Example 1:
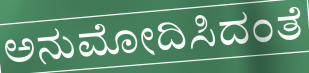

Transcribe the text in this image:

ಅನುಮೋದಿಸಿದಂತೆ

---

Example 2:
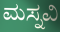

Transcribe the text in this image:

ಮಸ್ನವಿ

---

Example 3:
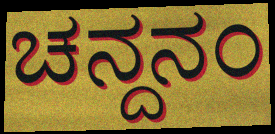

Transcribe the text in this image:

ಚನ್ದನಂ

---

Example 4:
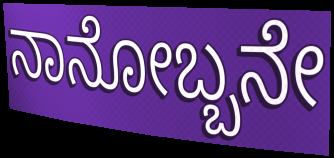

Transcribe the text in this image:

ನಾನೋಬ್ಬನೇ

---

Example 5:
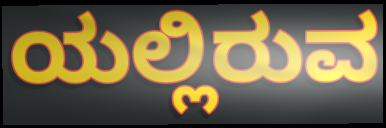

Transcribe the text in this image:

ಯಲ್ಲಿರುವ